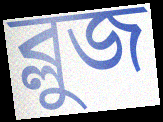
ব্লুজ